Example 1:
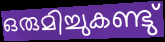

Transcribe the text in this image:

ഒരുമിച്ചുകണ്ടു്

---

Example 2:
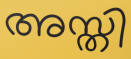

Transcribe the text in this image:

അസ്തി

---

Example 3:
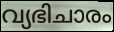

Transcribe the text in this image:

വ്യഭിചാരം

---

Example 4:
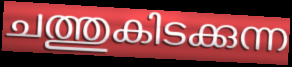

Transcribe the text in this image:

ചത്തുകിടക്കുന്ന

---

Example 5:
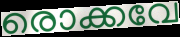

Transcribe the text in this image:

രൊക്കവേ